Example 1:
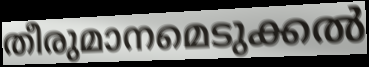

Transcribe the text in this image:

തീരുമാനമെടുക്കൽ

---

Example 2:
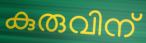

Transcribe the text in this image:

കുരുവിന്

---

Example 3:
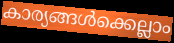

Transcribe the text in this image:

കാര്യങ്ങൾക്കെല്ലാം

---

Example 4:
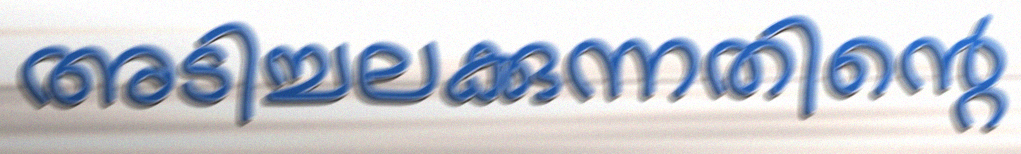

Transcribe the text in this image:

അടിച്ചലക്കുന്നതിന്റെ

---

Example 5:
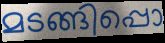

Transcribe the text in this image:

മടങ്ങിപ്പൊ